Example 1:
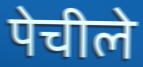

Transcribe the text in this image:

पेचीले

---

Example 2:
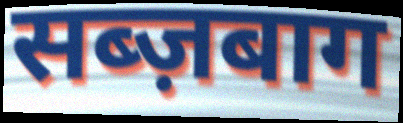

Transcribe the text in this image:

सब्ज़बाग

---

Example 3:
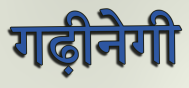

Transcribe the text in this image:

गढ़ीनेगी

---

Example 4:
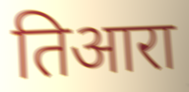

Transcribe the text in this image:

तिआरा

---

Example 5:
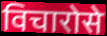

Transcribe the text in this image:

विचारोसे